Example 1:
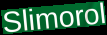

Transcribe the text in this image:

Slimorol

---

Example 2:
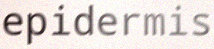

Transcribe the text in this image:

epidermis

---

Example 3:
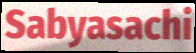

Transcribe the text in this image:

Sabyasachi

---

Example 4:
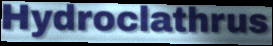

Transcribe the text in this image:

Hydroclathrus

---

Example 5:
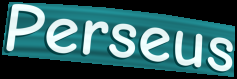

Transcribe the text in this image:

Perseus